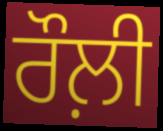
ਰੌਲ਼ੀ